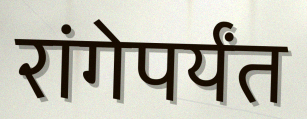
रांगेपर्यंत